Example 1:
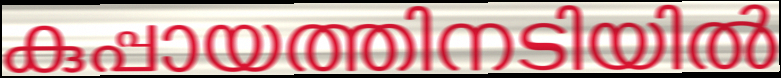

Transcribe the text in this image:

കുപ്പായത്തിനടിയിൽ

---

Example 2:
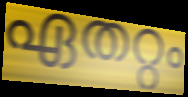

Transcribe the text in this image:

ഏതറ്റം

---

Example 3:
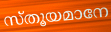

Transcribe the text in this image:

സ്തൂയമാനേ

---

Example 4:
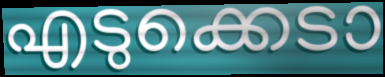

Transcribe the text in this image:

എടുക്കെടാ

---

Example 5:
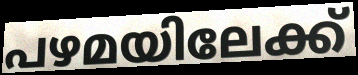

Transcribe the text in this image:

പഴമയിലേക്ക്